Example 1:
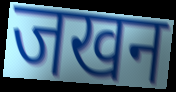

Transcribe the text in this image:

जखन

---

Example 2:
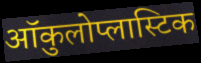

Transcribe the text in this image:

ऑकुलोप्लास्टिक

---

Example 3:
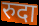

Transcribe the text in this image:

रुदा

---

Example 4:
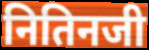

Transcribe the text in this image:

नितिनजी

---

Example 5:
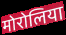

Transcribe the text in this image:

मोरोलिया